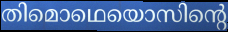
തിമൊഥെയൊസിന്റെ